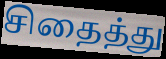
சிதைத்து